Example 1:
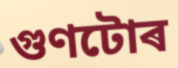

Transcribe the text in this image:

গুণটোৰ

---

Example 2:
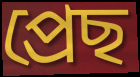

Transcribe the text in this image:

প্ৰেছ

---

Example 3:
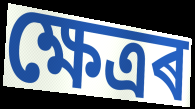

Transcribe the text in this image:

ক্ষেত্ৰৰ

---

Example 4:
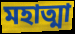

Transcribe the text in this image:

মহাত্মা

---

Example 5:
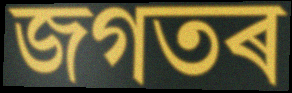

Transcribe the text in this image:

জগতৰ